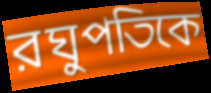
রঘুপতিকে